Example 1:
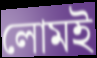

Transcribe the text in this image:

লোমই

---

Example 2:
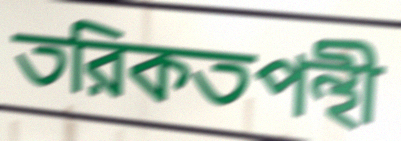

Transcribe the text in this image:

তরিকতপন্থী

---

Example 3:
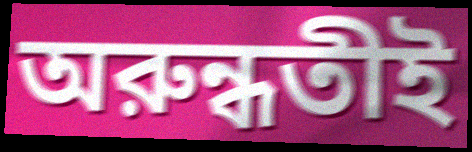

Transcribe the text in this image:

অরুন্ধতীই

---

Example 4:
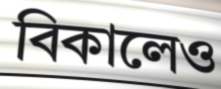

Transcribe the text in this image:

বিকালেও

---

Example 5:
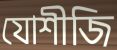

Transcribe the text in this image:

যোশীজি